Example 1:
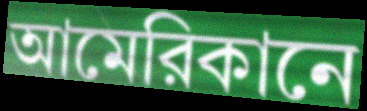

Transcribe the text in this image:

আমেরিকানে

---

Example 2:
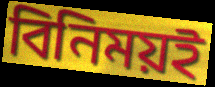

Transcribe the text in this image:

বিনিময়ই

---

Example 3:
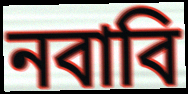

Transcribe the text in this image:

নবাবি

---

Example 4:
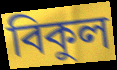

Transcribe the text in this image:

বিকুল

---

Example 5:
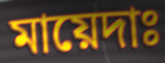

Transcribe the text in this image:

মায়েদাঃ